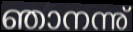
ഞാനന്നു്